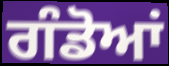
ਗੰਡੋਆਂ